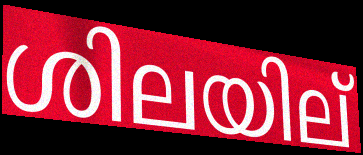
ശിലയില്